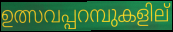
ഉത്സവപ്പറമ്പുകളില്